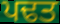
ਪਢਤ